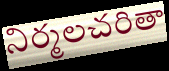
నిర్మలచరితా